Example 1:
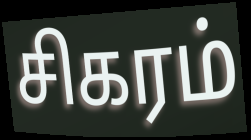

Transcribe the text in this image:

சிகரம்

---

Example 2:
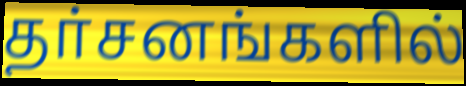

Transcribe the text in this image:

தர்சனங்களில்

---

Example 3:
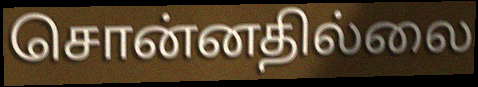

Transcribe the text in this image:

சொன்னதில்லை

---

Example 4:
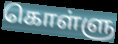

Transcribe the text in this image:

கொள்ளு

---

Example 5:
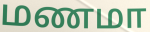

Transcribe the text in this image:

மணமா